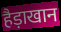
हैड़ाखान